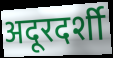
अदूरदर्शी